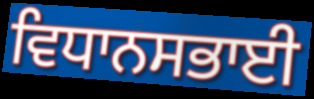
ਵਿਧਾਨਸਭਾਈ